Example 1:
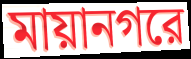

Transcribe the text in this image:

মায়ানগরে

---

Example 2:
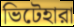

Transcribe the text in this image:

ভিটেহারা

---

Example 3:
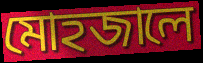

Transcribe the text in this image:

মোহজালে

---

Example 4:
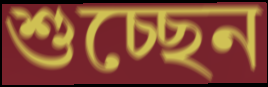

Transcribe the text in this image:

শুচ্ছেন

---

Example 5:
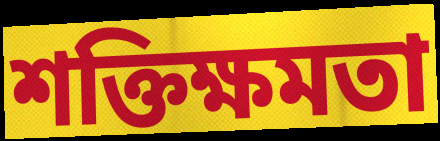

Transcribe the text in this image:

শক্তিক্ষমতা